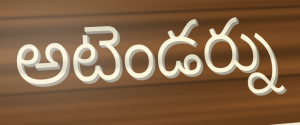
అటెండర్ను